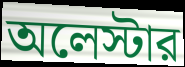
অলেস্টার